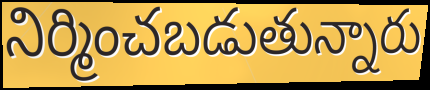
నిర్మించబడుతున్నారు